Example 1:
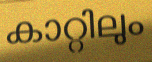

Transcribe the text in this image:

കാറ്റിലും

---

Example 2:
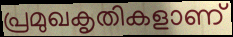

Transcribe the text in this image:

പ്രമുഖകൃതികളാണ്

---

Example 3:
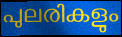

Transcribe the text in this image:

പുലരികളും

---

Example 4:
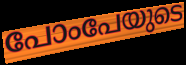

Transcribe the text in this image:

പോംപേയുടെ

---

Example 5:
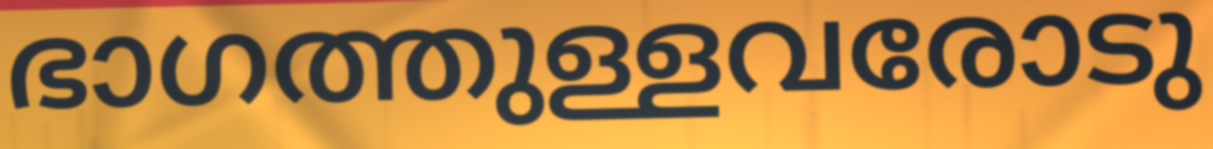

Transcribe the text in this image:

ഭാഗത്തുള്ളവരോടു